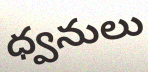
ధ్వనులు